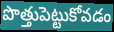
పొత్తుపెట్టుకోవడం